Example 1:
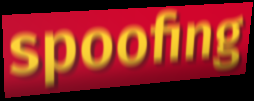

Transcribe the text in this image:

spoofing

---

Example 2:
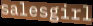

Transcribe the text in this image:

salesgirl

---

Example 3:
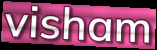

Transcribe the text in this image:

visham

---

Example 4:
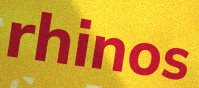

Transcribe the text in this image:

rhinos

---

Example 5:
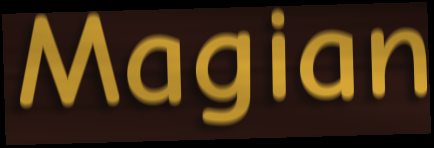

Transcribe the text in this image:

Magian